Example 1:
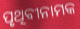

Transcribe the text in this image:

ପୃଥିବୀନାମକ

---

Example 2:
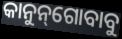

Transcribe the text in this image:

କାନୁନ୍‌ଗୋବାବୁ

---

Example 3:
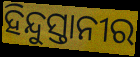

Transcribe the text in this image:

ହିନ୍ଦୁସ୍ତାନୀର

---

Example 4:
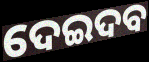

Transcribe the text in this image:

ଦେଇଦବ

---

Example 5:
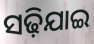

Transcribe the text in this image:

ସଢ଼ିଯାଇ